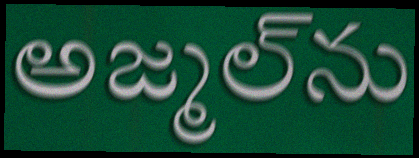
అజ్మల్‌ను